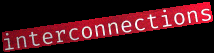
interconnections